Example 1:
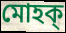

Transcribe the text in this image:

মোহক্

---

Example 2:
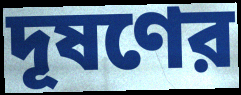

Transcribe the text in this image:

দূষণের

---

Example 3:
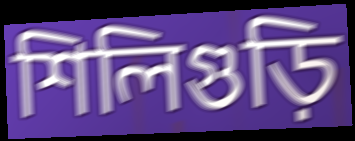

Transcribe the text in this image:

শিলিগুড়ি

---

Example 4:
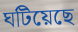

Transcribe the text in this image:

ঘটিয়েছে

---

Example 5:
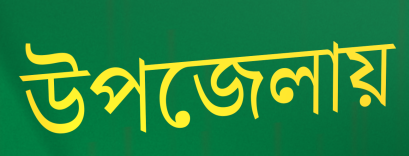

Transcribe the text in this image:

উপজেলায়